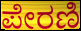
ಪೇರಣಿ